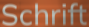
Schrift